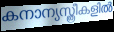
കനാന്യസ്ത്രീകളിൽ